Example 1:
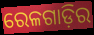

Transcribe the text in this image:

ରେଳଗାଡ଼ିର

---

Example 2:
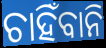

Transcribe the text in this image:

ଚାହିଁବାନି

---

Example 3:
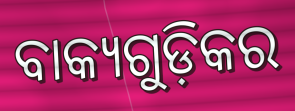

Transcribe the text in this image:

ବାକ୍ୟଗୁଡ଼ିକର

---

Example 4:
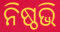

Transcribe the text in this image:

ନିଷ୍ଠଭି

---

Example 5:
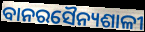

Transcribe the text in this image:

ବାନରସୈନ୍ୟଶାଳୀ